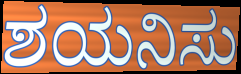
ಶಯನಿಸು